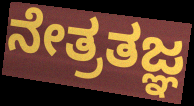
ನೇತ್ರತಜ್ಞ